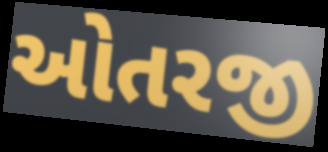
ઓતરજી